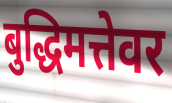
बुद्धिमत्तेवर